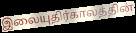
இலையுதிர்காலத்தின்